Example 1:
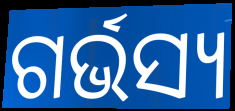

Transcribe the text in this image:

ଗର୍ଭସ୍ୟ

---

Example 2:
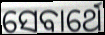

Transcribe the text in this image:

ସେବାର୍ଥେ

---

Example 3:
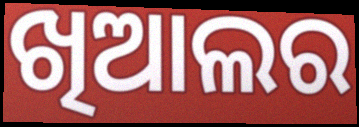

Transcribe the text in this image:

ଖିଆଲର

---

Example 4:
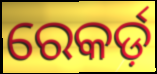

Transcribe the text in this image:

ରେକର୍ଡ଼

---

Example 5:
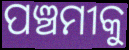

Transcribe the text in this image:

ପଞ୍ଚମୀକୁ